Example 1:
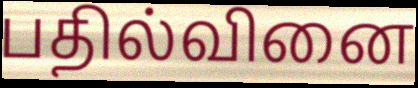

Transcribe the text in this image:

பதில்வினை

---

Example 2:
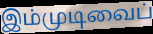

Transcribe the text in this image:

இம்முடிவைப்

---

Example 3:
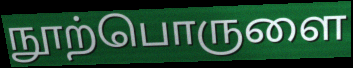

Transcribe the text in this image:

நூற்பொருளை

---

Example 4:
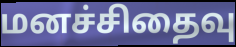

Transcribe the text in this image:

மனச்சிதைவு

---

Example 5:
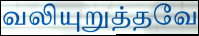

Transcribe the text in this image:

வலியுறுத்தவே